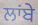
ਲਾਂਬੇ